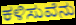
ಕಳಿಸುವೆನು